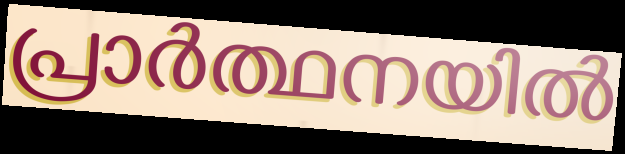
പ്രാർത്ഥനയിൽ